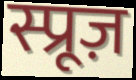
स्प्रूज़